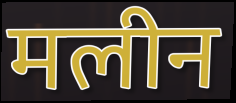
मलीन